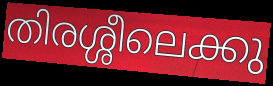
തിരശ്ശീലെക്കു